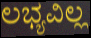
ಲಭ್ಯವಿಲ್ಲ